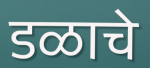
डळाचे